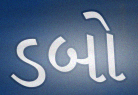
ડબો